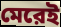
মেরেই